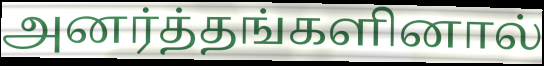
அனர்த்தங்களினால்